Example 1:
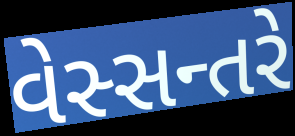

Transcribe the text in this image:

વેસ્સન્તરે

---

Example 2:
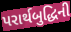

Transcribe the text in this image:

પરાર્થબુદ્ધિની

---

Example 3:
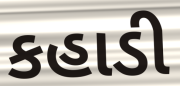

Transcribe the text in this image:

કહાડી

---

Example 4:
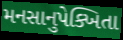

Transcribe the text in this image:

મનસાનુપેક્ખિતા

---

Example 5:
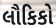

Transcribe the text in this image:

લૌકિકો